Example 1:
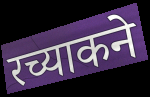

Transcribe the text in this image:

रच्याकने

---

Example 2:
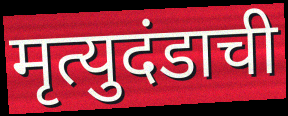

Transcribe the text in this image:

मृत्युदंडाची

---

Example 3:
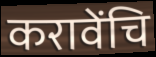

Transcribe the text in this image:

करावेंचि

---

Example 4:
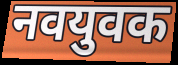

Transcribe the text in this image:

नवयुवक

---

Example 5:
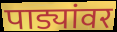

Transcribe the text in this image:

पाड्यांवर